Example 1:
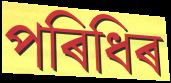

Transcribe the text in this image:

পৰিধিৰ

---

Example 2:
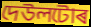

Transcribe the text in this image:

দেউলটোৰ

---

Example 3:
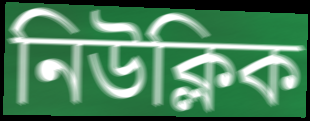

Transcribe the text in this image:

নিউক্লিক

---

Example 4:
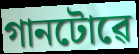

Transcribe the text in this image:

গানটোৱে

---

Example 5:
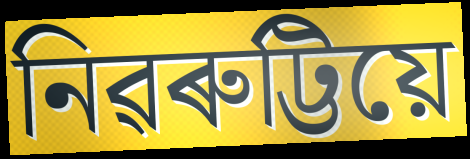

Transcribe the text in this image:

নিৱৰুট্টিয়ে